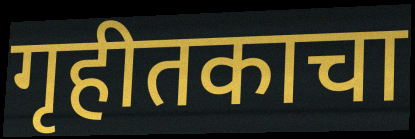
गृहीतकाचा